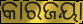
କାରଜୟା